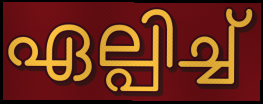
ഏല്പിച്ച്